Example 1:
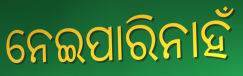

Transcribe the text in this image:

ନେଇପାରିନାହଁ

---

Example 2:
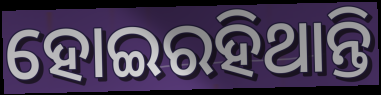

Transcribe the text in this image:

ହୋଇରହିଥାନ୍ତି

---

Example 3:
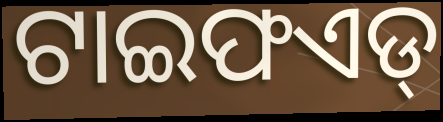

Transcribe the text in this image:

ଟାଇଫଏଡ୍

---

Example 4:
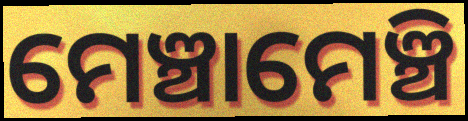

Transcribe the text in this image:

ମେଞ୍ଚାମେଞ୍ଚି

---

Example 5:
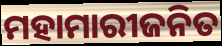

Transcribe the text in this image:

ମହାମାରୀଜନିତ